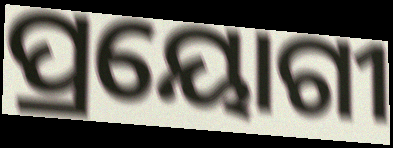
ପ୍ରୟୋଗୀ